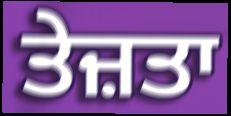
ਤੇਜ਼ਤਾ